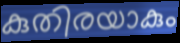
കുതിരയാകും